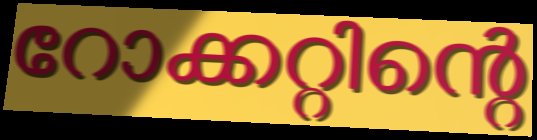
റോക്കറ്റിന്റെ